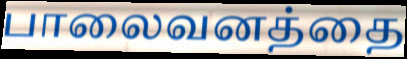
பாலைவனத்தை